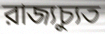
রাজ্যচ্যুত